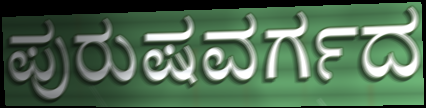
ಪುರುಷವರ್ಗದ